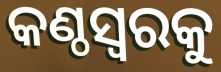
କଣ୍ଠସ୍ୱରକୁ